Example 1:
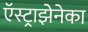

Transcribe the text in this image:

ऍस्ट्राझेनेका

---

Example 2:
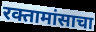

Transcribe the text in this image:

रक्तामांसाचा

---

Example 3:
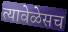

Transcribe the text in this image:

त्यावेळेसच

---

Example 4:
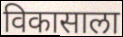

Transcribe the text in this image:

विकासाला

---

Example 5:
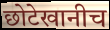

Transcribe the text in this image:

छोटेखानीच